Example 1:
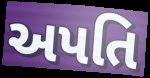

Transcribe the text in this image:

અપતિ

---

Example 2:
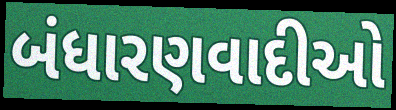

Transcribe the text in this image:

બંધારણવાદીઓ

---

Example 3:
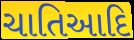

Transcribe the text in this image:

ચાતિઆદિ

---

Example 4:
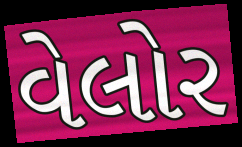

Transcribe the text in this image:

વેલોર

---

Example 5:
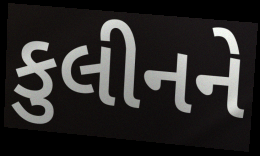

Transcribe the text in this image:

કુલીનને